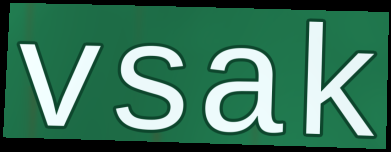
vsak